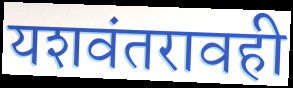
यशवंतरावही